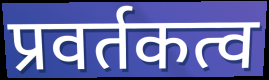
प्रवर्तकत्व